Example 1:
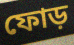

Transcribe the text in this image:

ফোড়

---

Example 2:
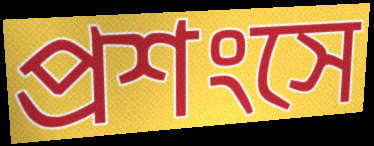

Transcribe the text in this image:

প্রশংসে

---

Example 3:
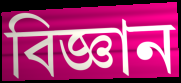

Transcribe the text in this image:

বিজ্ঞান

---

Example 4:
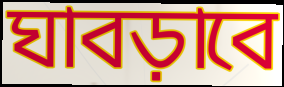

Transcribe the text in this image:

ঘাবড়াবে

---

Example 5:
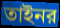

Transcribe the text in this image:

তাইনর